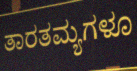
ತಾರತಮ್ಯಗಳೂ